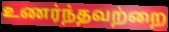
உணர்ந்தவற்றை